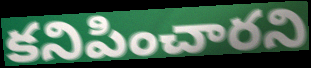
కనిపించారని